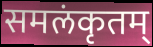
समलंकृतम्